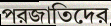
পরজাতিদের